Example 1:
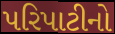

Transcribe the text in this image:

પરિપાટીનો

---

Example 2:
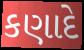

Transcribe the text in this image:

કણાદે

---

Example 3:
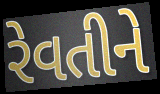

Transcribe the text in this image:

રેવતીને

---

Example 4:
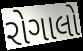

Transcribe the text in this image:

રોગાલો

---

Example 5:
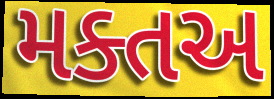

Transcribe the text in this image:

મક્તઅ